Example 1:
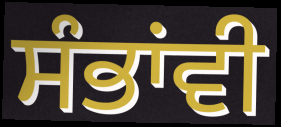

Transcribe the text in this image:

ਸੰਭਾਂਵੀ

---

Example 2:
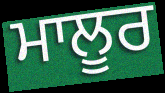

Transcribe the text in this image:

ਮਾਲੂਰ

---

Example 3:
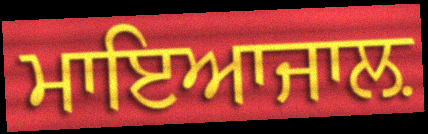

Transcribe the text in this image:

ਮਾਇਆਜਾਲ਼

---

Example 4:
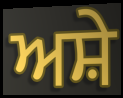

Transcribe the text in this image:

ਅਸ਼ੇ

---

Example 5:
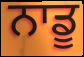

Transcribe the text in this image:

ਨਾਡੂ